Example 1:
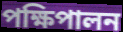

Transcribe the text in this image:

পক্ষিপালন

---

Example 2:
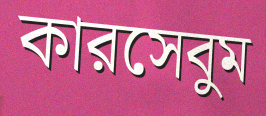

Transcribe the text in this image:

কারসেবুম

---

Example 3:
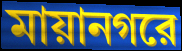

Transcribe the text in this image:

মায়ানগরে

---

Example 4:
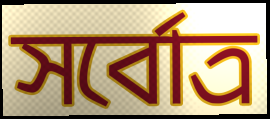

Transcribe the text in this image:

সর্বোত্র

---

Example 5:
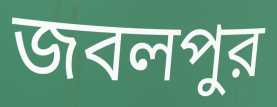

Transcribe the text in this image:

জবলপুর